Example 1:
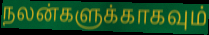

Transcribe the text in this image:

நலன்களுக்காகவும்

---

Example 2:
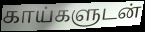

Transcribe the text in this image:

காய்களுடன்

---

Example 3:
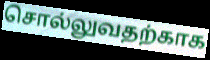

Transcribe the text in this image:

சொல்லுவதற்காக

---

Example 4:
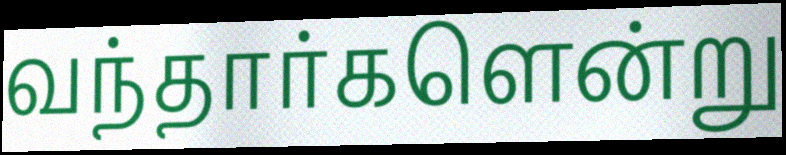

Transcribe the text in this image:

வந்தார்களென்று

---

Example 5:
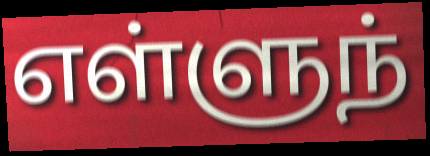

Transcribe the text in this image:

எள்ளுந்